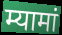
म्यामां